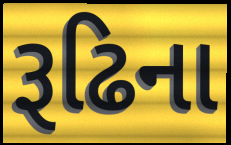
રૂઢિના